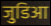
जुडिआ